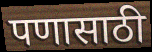
पणासाठी